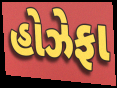
હોઝેફા